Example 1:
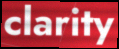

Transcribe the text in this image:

clarity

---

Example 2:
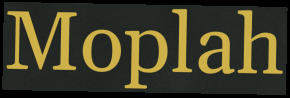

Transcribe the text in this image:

Moplah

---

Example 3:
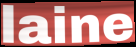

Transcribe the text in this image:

laine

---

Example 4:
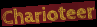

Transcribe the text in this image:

Charioteer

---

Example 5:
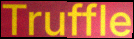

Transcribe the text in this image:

Truffle